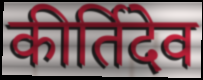
कीर्तिदेव